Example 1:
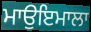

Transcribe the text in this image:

ਮਾਉਇਮਾਲਾ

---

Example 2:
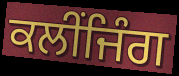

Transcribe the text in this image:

ਕਲੀਂਜਿੰਗ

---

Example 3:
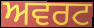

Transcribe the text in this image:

ਅਵਰਟ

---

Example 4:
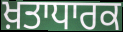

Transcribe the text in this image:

ਖ਼ਤਾਧਾਰਕ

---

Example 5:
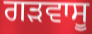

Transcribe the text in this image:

ਗੜਵਾਸੂ